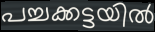
പച്ചക്കട്ടയിൽ